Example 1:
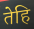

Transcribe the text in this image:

तेहि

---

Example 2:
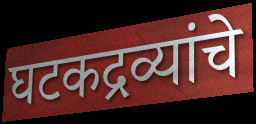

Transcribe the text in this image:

घटकद्रव्यांचे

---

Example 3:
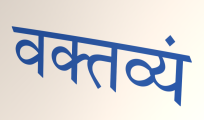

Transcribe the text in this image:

वक्तव्यं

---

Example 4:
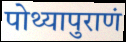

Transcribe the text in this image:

पोथ्यापुराणं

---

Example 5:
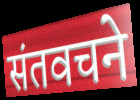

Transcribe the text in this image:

संतवचने